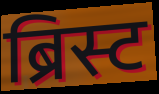
ब्रिस्ट